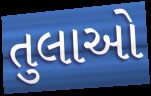
તુલાઓ